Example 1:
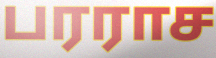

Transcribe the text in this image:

பரராச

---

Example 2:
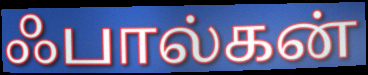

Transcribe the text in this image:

ஃபால்கன்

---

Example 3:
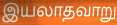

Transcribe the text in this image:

இயலாதவாறு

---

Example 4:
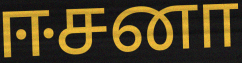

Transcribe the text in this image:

ஈசனா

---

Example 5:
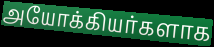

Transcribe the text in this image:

அயோக்கியர்களாக